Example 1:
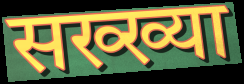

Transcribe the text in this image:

सख्ख्या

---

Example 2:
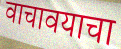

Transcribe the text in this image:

वाचावयाचा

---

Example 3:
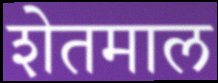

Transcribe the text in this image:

शेतमाल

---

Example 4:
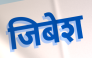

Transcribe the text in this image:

जिबेश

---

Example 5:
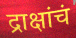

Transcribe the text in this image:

द्राक्षांचं